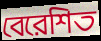
বেরেশিত